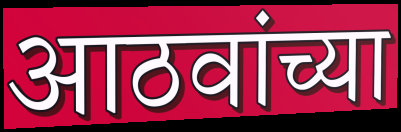
आठवांच्या